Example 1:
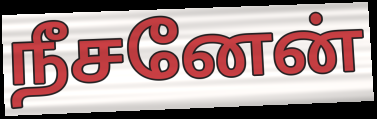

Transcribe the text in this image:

நீசனேன்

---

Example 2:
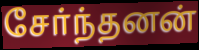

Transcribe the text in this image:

சேர்ந்தனன்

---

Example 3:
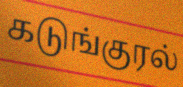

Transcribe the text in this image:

கடுங்குரல்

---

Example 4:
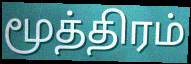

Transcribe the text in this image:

மூத்திரம்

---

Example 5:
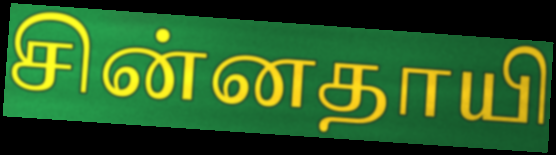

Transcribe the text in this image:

சின்னதாயி